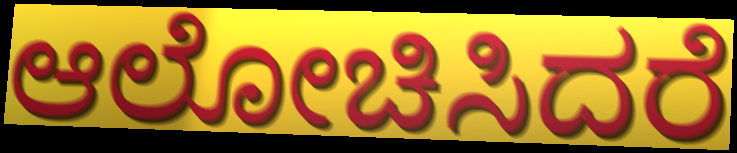
ಆಲೋಚಿಸಿದರೆ